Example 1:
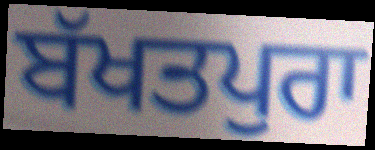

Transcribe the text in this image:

ਬੱਖਤਪੁਰਾ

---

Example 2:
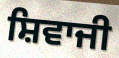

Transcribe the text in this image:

ਸ਼ਿਵਾਜੀ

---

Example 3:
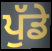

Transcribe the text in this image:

ਪੁੱਡੇ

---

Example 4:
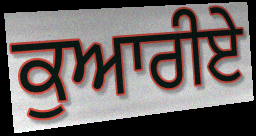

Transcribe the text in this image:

ਕੁਆਰੀਏ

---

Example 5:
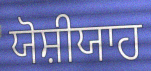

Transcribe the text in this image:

ਯੋਸ਼ੀਯਾਹ